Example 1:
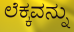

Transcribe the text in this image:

ಲೆಕ್ಕವನ್ನು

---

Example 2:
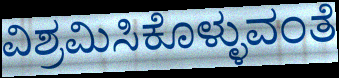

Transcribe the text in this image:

ವಿಶ್ರಮಿಸಿಕೊಳ್ಳುವಂತೆ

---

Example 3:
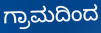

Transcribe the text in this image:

ಗ್ರಾಮದಿಂದ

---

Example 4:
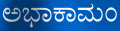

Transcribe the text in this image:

ಅಭಾಕಾಮಂ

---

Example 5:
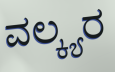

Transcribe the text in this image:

ವಲ್ಕ್ಯರ